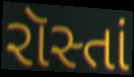
રૉસ્તાં